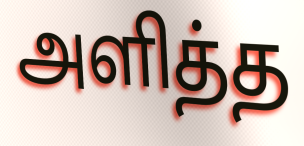
அளித்த